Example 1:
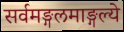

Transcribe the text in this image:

सर्वमङ्गलमाङ्गल्ये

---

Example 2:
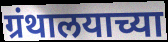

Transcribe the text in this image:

ग्रंथालयाच्या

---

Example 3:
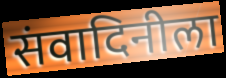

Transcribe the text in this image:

संवादिनीला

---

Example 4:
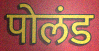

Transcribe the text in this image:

पोलंड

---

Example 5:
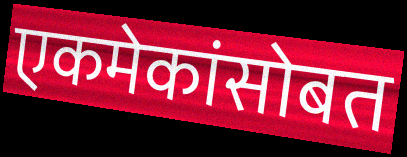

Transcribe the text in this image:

एकमेकांसोबत